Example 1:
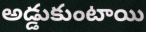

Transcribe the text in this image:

అడ్డుకుంటాయి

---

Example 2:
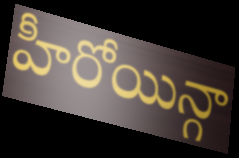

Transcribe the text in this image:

హీరోయిన్గా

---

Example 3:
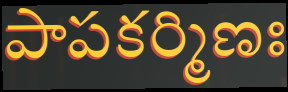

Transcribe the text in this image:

పాపకర్మిణః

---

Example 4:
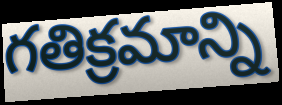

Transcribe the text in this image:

గతిక్రమాన్ని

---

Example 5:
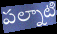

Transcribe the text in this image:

పల్నాటి